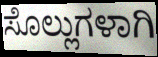
ಸೊಲ್ಲುಗಳಾಗಿ